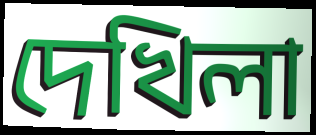
দেখিলা